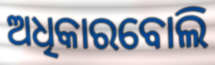
ଅଧିକାରବୋଲି